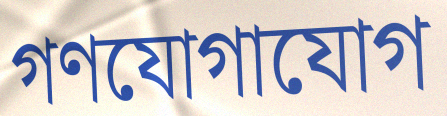
গণযোগাযোগ